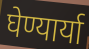
घेण्यार्या